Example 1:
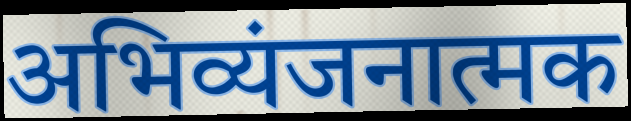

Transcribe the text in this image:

अभिव्यंजनात्मक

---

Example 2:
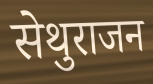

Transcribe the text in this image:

सेथुराजन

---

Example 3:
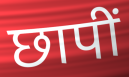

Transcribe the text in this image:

छापीं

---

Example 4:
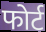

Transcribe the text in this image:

फोर्ट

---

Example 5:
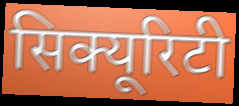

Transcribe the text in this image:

सिक्यूरिटी